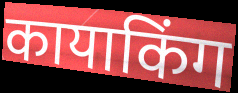
कायाकिंग